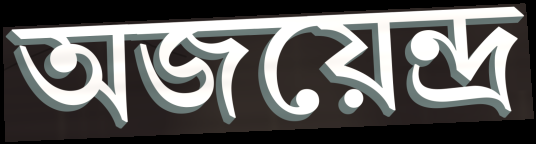
অজয়েন্দ্র